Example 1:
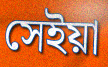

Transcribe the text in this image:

সেইয়া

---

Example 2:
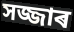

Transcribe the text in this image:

সজ্জাৰ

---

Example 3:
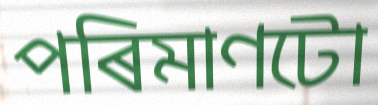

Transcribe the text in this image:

পৰিমাণটো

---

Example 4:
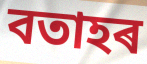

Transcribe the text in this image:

বতাহৰ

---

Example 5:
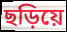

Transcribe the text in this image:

ছড়িয়ে